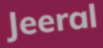
Jeeral